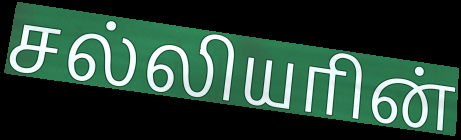
சல்லியரின்